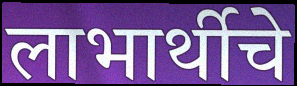
लाभार्थीचे